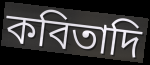
কবিতাদি